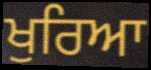
ਖੁਰਿਆ